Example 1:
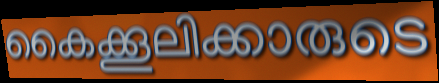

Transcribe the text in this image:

കൈക്കൂലിക്കാരുടെ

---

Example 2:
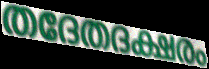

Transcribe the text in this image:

തദേതദക്ഷരം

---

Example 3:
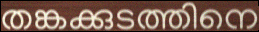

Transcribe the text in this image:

തങ്കക്കുടത്തിനെ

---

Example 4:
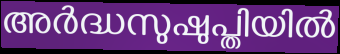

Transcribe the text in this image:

അർദ്ധസുഷുപ്തിയിൽ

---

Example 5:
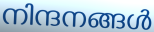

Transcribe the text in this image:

നിന്ദനങ്ങൾ